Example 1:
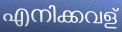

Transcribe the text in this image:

എനിക്കവള്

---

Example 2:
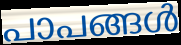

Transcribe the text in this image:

പാപങ്ങൾ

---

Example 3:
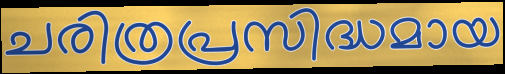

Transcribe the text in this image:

ചരിത്രപ്രസിദ്ധമായ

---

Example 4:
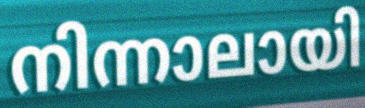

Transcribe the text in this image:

നിന്നാലായി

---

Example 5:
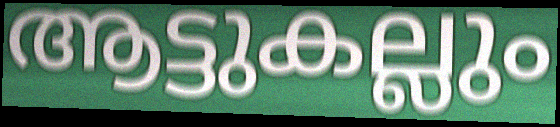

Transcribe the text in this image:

ആട്ടുകല്ലും